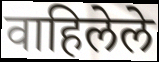
वाहिलेले